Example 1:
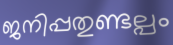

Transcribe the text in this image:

ജനിപ്പതുണ്ടല്പം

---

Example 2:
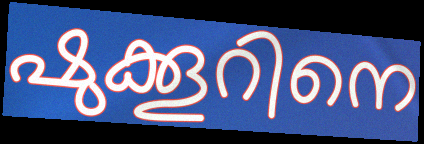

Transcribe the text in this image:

ഷുക്കൂറിനെ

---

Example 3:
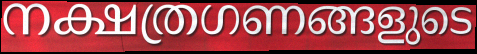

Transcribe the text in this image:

നക്ഷത്രഗണങ്ങളുടെ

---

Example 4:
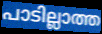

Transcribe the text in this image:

പാടില്ലാത്ത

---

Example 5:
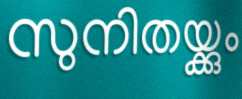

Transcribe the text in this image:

സുനിതയ്ക്കും